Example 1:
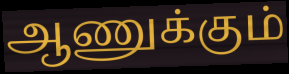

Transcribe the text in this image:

ஆணுக்கும்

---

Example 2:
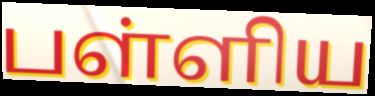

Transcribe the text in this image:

பள்ளிய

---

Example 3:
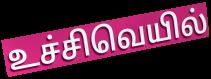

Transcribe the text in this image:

உச்சிவெயில்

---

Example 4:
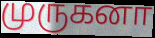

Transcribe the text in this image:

முருகனா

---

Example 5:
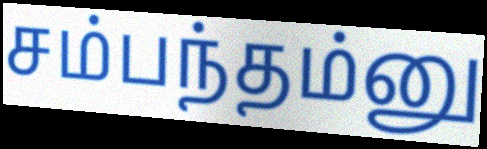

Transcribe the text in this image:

சம்பந்தம்னு